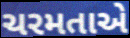
ચરમતાએ